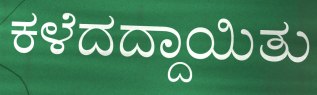
ಕಳೆದದ್ದಾಯಿತು